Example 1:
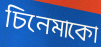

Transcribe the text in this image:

চিনেমাকো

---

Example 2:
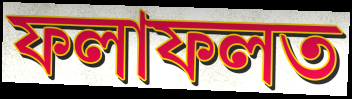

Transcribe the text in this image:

ফলাফলত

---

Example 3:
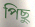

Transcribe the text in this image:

পিছু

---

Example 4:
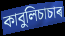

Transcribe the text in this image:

কাবুলিচাচাৰ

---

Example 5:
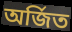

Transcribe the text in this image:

অৰ্জিত